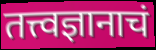
तत्त्वज्ञानाचं